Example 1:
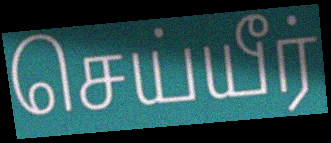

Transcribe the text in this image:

செய்யீர்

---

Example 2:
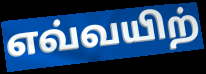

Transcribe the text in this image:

எவ்வயிற்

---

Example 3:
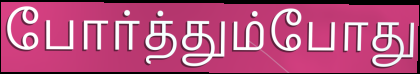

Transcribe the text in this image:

போர்த்தும்போது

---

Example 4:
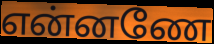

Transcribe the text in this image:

என்னணே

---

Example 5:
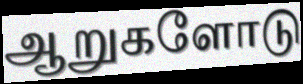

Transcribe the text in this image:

ஆறுகளோடு